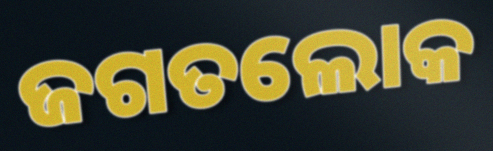
ଜଗତଲୋକ